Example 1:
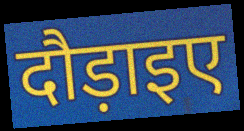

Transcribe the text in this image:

दौड़ाइए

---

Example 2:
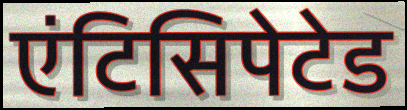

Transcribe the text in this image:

एंटिसिपेटेड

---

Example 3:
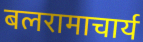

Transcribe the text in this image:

बलरामाचार्य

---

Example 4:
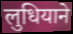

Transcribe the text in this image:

लुधियाने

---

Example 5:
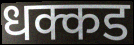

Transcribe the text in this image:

धक्कड